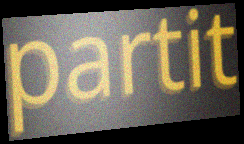
partit